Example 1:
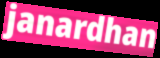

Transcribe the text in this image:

janardhan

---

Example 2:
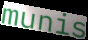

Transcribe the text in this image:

munis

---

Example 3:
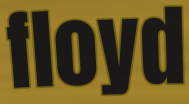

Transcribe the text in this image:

floyd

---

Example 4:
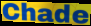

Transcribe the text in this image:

Chade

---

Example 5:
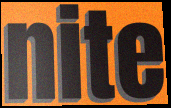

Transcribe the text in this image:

nite